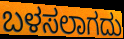
ಬಳಸಲಾಗದು